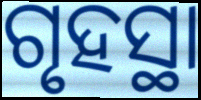
ଗୃହସ୍ଥା